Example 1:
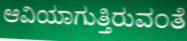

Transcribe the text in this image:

ಆವಿಯಾಗುತ್ತಿರುವಂತೆ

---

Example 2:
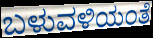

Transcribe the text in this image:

ಬಳುವಳಿಯಂತೆ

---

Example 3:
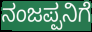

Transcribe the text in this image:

ನಂಜಪ್ಪನಿಗೆ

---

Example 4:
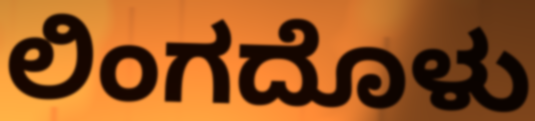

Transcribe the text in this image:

ಲಿಂಗದೊಳು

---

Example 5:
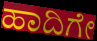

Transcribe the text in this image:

ಹಾದಿಗೇ